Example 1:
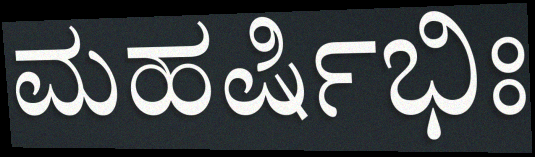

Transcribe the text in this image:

ಮಹರ್ಷಿಭಿಃ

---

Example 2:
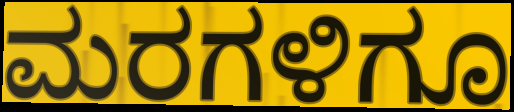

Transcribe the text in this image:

ಮರಗಳಿಗೂ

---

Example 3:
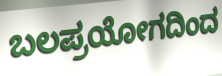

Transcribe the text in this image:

ಬಲಪ್ರಯೋಗದಿಂದ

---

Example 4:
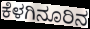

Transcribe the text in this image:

ಕೆಳಗಿನೂರಿನ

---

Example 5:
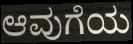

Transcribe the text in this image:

ಆವುಗೆಯ